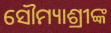
ସୌମ୍ୟାଶ୍ରୀଙ୍କ